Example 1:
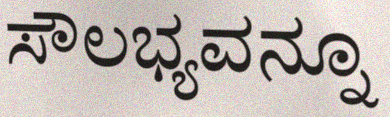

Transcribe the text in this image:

ಸೌಲಭ್ಯವನ್ನೂ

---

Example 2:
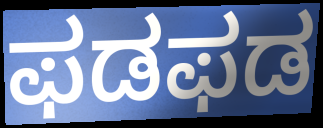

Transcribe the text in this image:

ಫಡಫಡ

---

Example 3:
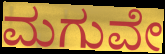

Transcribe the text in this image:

ಮಗುವೇ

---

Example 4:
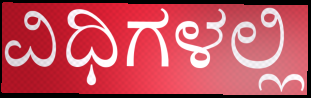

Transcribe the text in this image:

ವಿಧಿಗಳಲ್ಲಿ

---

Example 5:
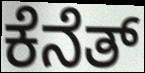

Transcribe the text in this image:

ಕೆನೆತ್